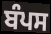
ਬੰਪਸ